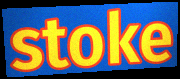
stoke